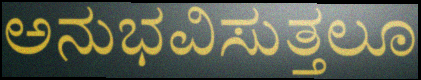
ಅನುಭವಿಸುತ್ತಲೂ